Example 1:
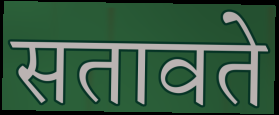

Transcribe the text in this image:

सतावते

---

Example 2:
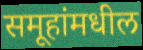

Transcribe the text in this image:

समूहांमधील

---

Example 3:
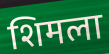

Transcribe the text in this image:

शिमला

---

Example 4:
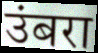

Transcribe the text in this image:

उंबरा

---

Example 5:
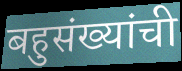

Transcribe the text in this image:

बहुसंख्यांची